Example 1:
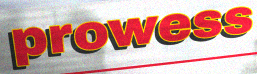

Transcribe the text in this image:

prowess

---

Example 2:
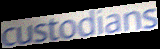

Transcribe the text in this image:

custodians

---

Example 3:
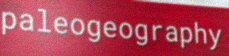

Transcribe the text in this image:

paleogeography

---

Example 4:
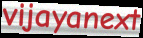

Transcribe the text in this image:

vijayanext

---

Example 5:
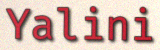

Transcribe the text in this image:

Yalini